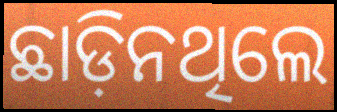
ଛାଡ଼ିନଥିଲେ